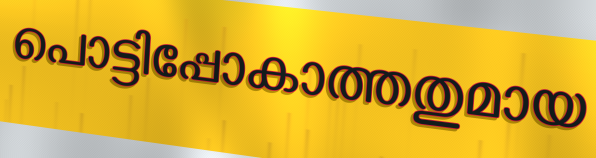
പൊട്ടിപ്പോകാത്തതുമായ